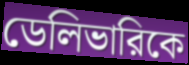
ডেলিভারিকে